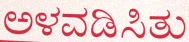
ಅಳವಡಿಸಿತು